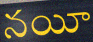
నయీ